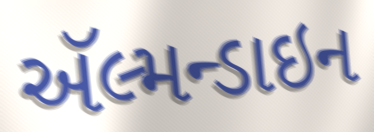
ઍલ્મન્ડાઇન